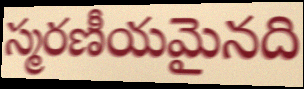
స్మరణీయమైనది